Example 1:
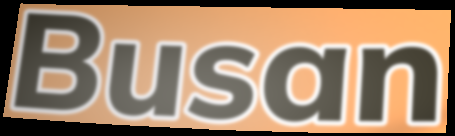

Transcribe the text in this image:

Busan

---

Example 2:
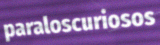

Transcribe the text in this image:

paraloscuriosos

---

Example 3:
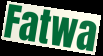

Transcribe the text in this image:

Fatwa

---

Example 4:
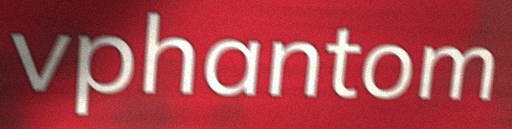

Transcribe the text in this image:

vphantom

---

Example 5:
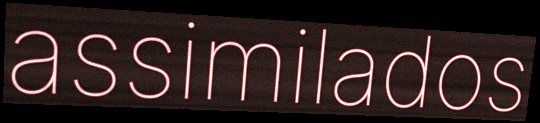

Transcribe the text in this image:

assimilados